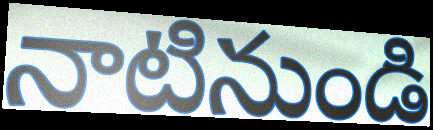
నాటినుండి